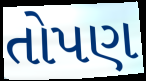
તોપણ